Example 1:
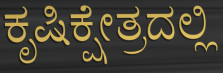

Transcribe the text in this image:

ಕೃಷಿಕ್ಷೇತ್ರದಲ್ಲಿ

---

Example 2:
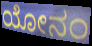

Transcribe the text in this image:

ಯೋನಂ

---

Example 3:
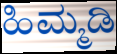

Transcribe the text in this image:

ಹಿಮ್ಮಡಿ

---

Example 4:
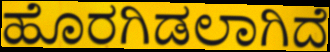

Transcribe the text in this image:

ಹೊರಗಿಡಲಾಗಿದೆ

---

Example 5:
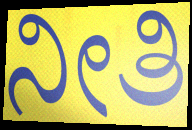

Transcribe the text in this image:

ನೀತಿ